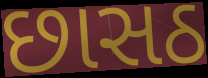
છાસઠ